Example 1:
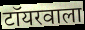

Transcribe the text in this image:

टॉयरवाला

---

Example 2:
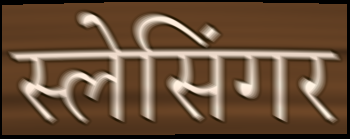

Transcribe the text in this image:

स्लेसिंगर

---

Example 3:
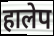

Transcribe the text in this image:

हालेप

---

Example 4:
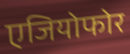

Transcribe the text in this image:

एजियोफोर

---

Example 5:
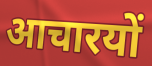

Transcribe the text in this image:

आचारयों